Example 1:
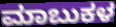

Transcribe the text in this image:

ಮಾಬುಕಳ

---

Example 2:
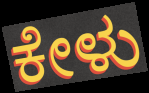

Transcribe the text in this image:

ಕೇಳು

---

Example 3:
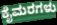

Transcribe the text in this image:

ಕೈಮರಗಳು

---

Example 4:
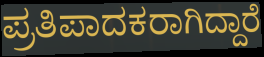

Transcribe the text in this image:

ಪ್ರತಿಪಾದಕರಾಗಿದ್ದಾರೆ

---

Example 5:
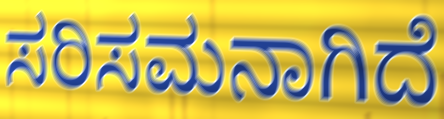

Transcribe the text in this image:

ಸರಿಸಮನಾಗಿದೆ